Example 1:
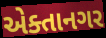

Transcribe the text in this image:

એક્તાનગર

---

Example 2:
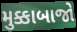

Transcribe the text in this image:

મુક્કાબાજો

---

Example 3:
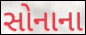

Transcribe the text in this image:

સોનાના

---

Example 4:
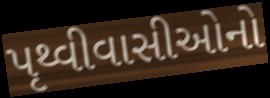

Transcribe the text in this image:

પૃથ્વીવાસીઓનો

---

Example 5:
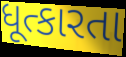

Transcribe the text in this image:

ધૂત્કારતા